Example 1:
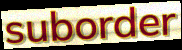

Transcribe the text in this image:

suborder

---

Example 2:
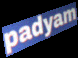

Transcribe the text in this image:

padyam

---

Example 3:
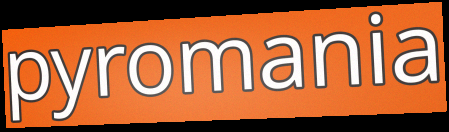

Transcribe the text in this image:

pyromania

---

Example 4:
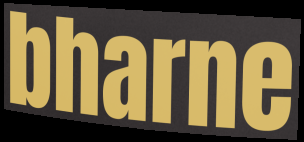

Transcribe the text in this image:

bharne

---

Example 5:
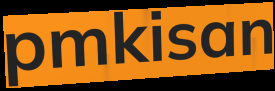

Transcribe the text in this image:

pmkisan